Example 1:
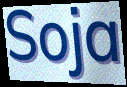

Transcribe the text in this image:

Soja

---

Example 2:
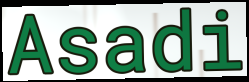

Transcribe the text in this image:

Asadi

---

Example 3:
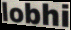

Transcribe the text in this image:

lobhi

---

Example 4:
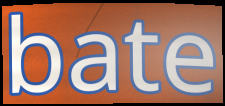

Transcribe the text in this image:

bate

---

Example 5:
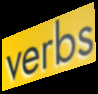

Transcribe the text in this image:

verbs